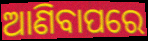
ଆଣିବାପରେ